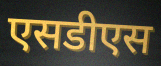
एसडीएस